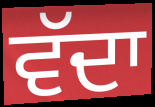
ਵੱਦਾ